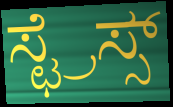
ಸ್ಟ್ರೆಸ್ಸ್